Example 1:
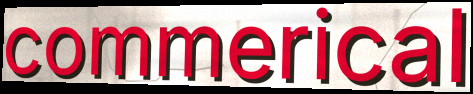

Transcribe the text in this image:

commerical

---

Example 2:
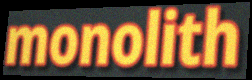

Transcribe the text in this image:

monolith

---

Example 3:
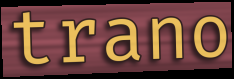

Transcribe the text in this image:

trano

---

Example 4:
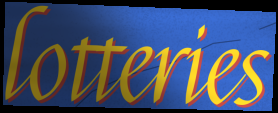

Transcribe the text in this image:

lotteries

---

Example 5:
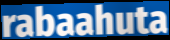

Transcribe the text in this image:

rabaahuta